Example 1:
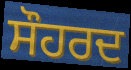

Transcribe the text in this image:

ਸੌਹਰਦ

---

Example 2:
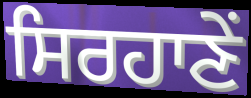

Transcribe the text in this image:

ਸਿਰਹਾਣੇਂ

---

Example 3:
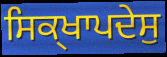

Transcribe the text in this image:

ਸਿਕ੍ਖਾਪਦੇਸੁ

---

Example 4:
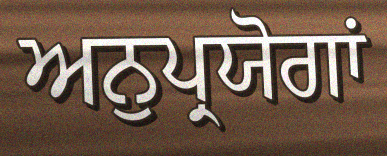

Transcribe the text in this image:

ਅਨੁਪ੍ਰਯੋਗਾਂ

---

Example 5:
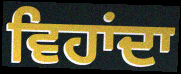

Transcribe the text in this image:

ਵਿਹਾਂਦਾ